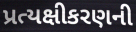
પ્રત્યક્ષીકરણની